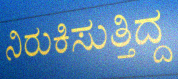
ನಿರುಕಿಸುತ್ತಿದ್ದ